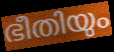
ഭീതിയും